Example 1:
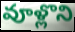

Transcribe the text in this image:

వూళ్లొని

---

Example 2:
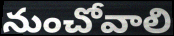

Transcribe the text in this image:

నుంచోవాలి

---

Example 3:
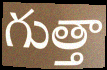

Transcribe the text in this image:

గుత్తా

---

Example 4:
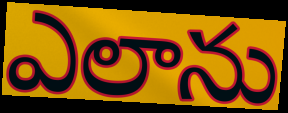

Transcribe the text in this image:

ఎలాను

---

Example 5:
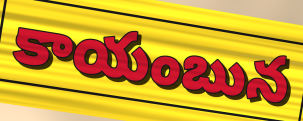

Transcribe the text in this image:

కాయంబున